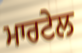
ਮਾਰਟੇਲ